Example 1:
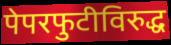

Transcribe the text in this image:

पेपरफुटीविरुद्ध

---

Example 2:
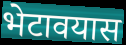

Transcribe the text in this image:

भेटावयास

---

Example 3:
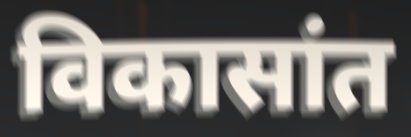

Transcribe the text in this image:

विकासांत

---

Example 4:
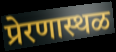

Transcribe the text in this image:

प्रेरणास्थळ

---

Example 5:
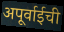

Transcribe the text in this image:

अपूर्वाईची